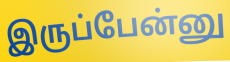
இருப்பேன்னு